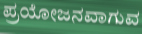
ಪ್ರಯೋಜನವಾಗುವ